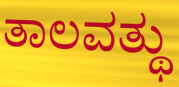
ತಾಲವತ್ಥು